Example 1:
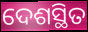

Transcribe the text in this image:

ଦେଶସ୍ଥିତ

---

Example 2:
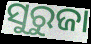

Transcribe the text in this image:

ସୁରୁଜା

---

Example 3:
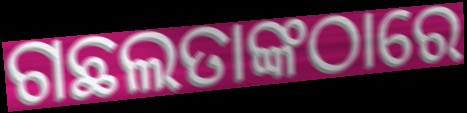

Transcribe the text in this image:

ଗଛଲତାଙ୍କଠାରେ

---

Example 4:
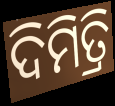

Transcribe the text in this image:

ଦିମିତ୍ରି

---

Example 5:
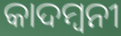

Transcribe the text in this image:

କାଦମ୍ୱନୀ